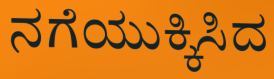
ನಗೆಯುಕ್ಕಿಸಿದ